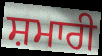
ਸ਼ਮਾਰੀ